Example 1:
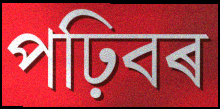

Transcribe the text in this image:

পঢ়িবৰ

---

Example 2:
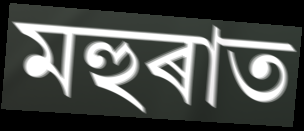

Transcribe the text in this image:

মহুৰাত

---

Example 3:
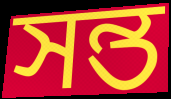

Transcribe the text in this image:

সন্ত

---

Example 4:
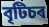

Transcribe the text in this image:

বৃটিচৰ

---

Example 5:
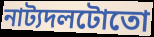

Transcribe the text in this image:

নাট্যদলটোতো